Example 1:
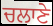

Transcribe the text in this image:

ਚਲਾਣੇ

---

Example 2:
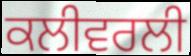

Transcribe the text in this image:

ਕਲੀਵਰਲੀ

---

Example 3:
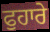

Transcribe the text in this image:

ਫੁਹਾਰੇ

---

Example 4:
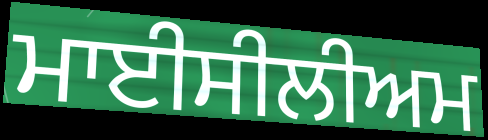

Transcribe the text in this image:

ਮਾਈਸੀਲੀਅਮ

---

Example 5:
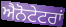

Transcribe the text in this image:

ਐਨੋਟੇਟਰਾਂ